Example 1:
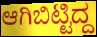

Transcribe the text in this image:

ಆಗಿಬಿಟ್ಟಿದ್ದ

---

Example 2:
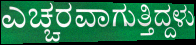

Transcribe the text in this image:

ಎಚ್ಚರವಾಗುತ್ತಿದ್ದಳು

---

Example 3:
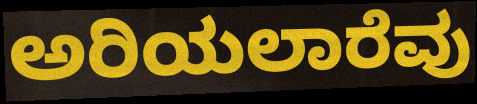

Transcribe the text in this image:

ಅರಿಯಲಾರೆವು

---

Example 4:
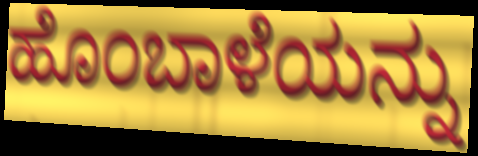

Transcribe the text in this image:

ಹೊಂಬಾಳೆಯನ್ನು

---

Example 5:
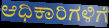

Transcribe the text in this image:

ಆಧಿಕಾರಿಗಳಿಗೆ